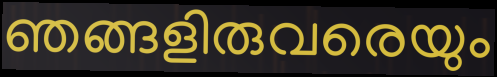
ഞങ്ങളിരുവരെയും